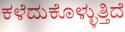
ಕಳೆದುಕೊಳ್ಳುತ್ತಿದೆ